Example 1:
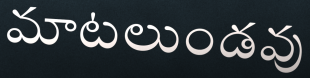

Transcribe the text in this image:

మాటలుండవు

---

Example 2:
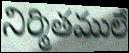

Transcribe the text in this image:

నిర్మితములే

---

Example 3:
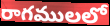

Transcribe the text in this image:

రాగములలో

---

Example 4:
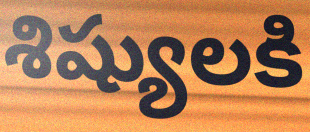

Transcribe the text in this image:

శిష్యులకి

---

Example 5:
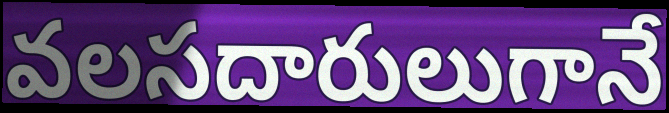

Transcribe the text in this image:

వలసదారులుగానే